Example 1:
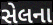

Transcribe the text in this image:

સેલના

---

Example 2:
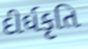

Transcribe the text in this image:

દીર્ઘકૃતિ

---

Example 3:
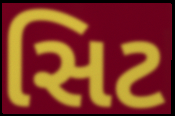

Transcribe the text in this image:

સિટ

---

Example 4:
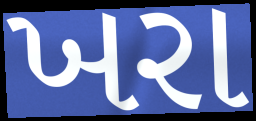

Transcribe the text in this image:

ખરા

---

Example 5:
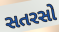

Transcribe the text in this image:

સતરસો